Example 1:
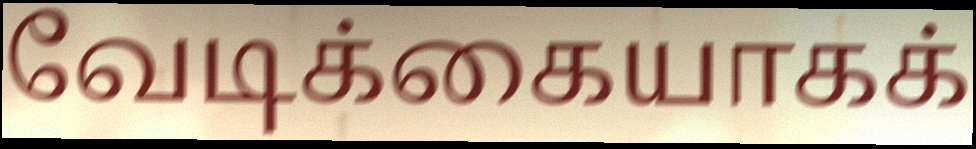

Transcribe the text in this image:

வேடிக்கையாகக்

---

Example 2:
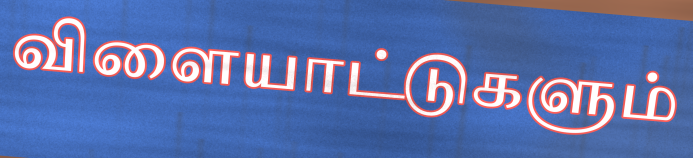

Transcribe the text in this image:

விளையாட்டுகளும்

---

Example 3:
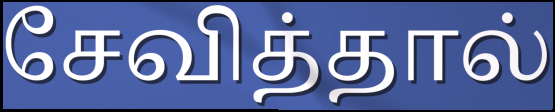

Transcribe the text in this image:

சேவித்தால்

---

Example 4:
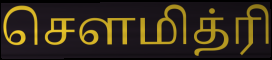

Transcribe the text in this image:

சௌமித்ரி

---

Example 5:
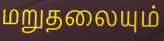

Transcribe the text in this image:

மறுதலையும்